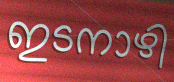
ഇടനാഴി